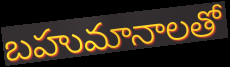
బహుమానాలతో